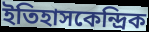
ইতিহাসকেন্দ্রিক